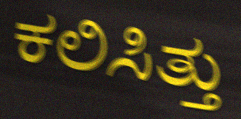
ಕಲಿಸಿತ್ತು